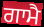
ਗਾਮੈ